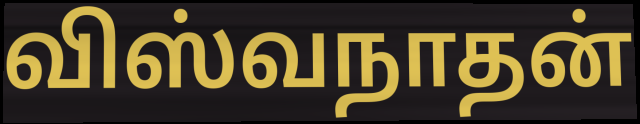
விஸ்வநாதன்